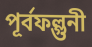
পূর্বফল্গুনী